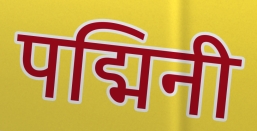
पद्मिनी